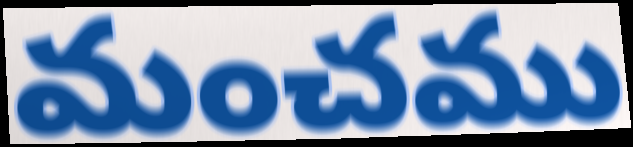
మంచము